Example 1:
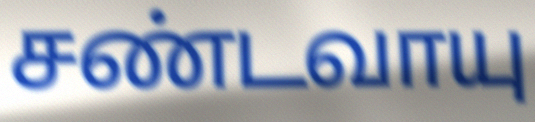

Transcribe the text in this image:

சண்டவாயு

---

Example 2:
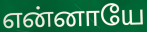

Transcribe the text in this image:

என்னாயே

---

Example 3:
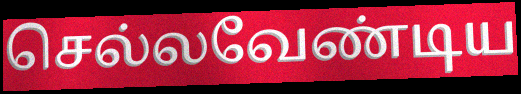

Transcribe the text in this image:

செல்லவேண்டிய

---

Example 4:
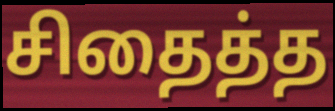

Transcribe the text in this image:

சிதைத்த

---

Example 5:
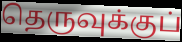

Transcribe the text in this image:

தெருவுக்குப்